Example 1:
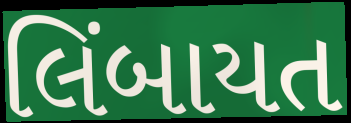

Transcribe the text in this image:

લિંબાયત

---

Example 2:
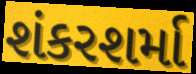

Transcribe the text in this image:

શંકરશર્મા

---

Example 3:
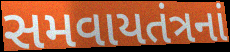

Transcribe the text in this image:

સમવાયતંત્રનાં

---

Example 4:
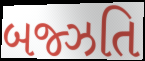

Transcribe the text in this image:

બજ્ઝતિ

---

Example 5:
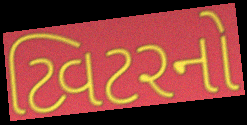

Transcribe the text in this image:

ટ્વિટરનો